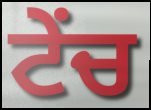
ਟੇਂਚ